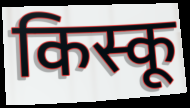
किस्कू